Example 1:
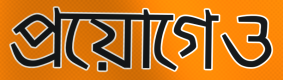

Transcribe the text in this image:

প্ৰয়োগেও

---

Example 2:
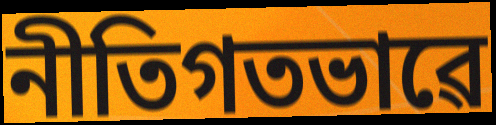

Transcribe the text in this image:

নীতিগতভাৱে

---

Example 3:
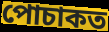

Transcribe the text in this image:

পোচাকত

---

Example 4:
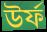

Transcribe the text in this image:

উৰ্ফ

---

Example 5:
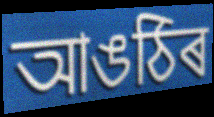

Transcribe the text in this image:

আঙঠিৰ